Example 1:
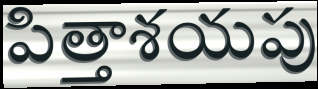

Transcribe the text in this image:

పిత్తాశయపు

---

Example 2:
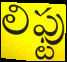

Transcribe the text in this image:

లిఫ్టు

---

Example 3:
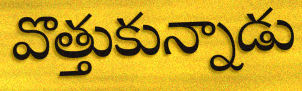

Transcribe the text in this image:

వొత్తుకున్నాడు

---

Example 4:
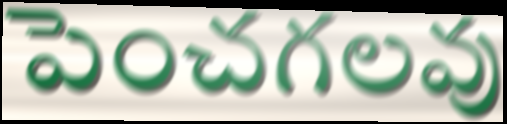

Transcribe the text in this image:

పెంచగలవు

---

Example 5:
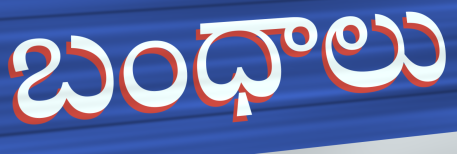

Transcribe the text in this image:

బంధాలు